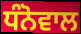
ਧੰਨੋਵਾਲ